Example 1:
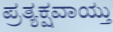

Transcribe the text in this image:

ಪ್ರತ್ಯಕ್ಷವಾಯ್ತು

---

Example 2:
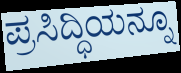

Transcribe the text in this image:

ಪ್ರಸಿದ್ಧಿಯನ್ನೂ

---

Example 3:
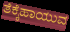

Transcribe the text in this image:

ತೆಕ್ಕೆಹಾಯುವ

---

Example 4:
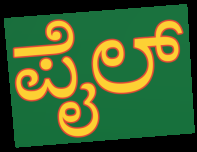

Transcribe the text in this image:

ಪೈಲ್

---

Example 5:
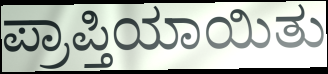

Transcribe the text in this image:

ಪ್ರಾಪ್ತಿಯಾಯಿತು